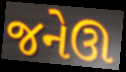
જનેઊ